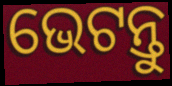
ଭେଟନ୍ତୁ